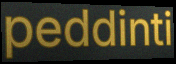
peddinti